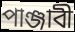
পাঞ্জাবী